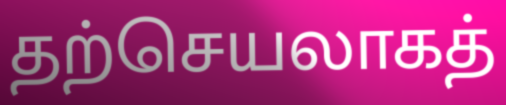
தற்செயலாகத்